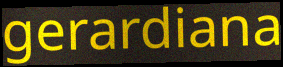
gerardiana